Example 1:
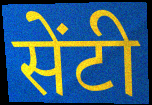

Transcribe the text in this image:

सेंटी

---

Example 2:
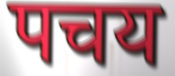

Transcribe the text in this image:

पचय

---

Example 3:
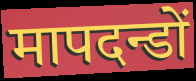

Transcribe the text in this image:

मापदन्डों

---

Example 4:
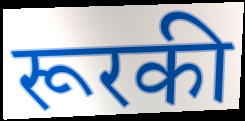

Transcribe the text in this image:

रूरकी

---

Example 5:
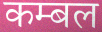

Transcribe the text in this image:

कम्बल